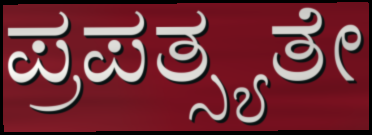
ಪ್ರಪತ್ಸ್ಯತೇ